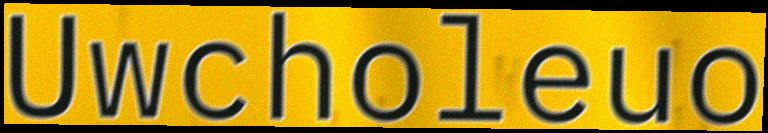
Uwcholeuo